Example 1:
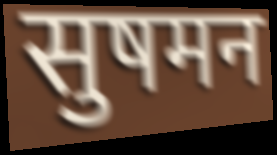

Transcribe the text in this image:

सुषमन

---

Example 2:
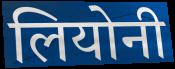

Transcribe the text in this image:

लियोनी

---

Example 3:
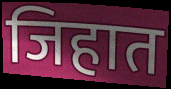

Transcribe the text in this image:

जिहात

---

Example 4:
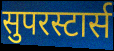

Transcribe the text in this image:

सुपरस्टार्स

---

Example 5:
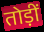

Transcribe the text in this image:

तोड़ीं